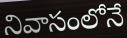
నివాసంలోనే